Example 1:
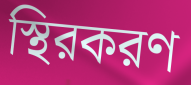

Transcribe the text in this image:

স্থিরকরণ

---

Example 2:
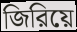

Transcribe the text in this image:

জিরিয়ে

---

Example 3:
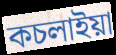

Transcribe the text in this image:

কচলাইয়া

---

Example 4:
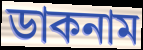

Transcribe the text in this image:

ডাকনাম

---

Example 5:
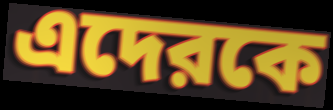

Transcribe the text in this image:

এদেরকে